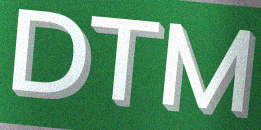
DTM